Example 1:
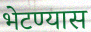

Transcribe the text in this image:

भेटण्यास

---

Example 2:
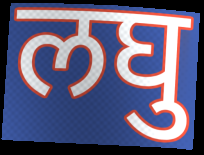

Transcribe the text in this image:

लघु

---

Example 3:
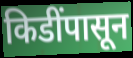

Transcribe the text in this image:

किडींपासून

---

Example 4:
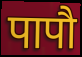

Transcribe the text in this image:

पापौ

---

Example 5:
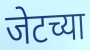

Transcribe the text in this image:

जेटच्या